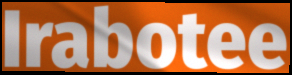
Irabotee